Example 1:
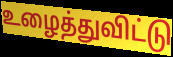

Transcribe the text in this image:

உழைத்துவிட்டு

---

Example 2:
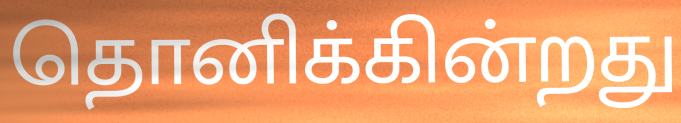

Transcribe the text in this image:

தொனிக்கின்றது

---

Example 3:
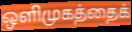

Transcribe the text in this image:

ஒளிமுகத்தைக்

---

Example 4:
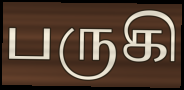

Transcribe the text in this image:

பருகி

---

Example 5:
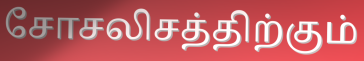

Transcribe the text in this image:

சோசலிசத்திற்கும்